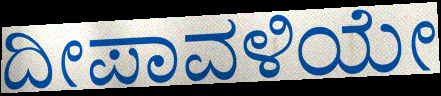
ದೀಪಾವಳಿಯೇ